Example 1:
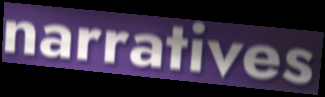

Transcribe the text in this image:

narratives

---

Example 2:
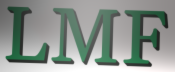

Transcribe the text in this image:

LMF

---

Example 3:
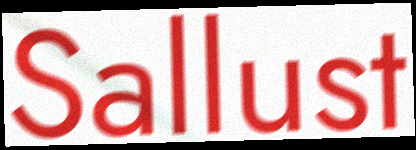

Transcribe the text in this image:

Sallust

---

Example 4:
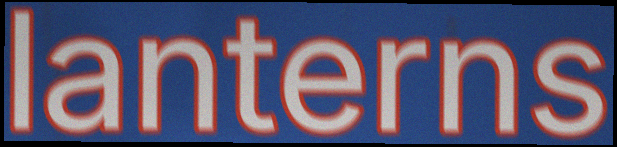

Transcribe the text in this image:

lanterns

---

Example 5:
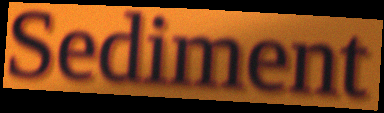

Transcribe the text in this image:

Sediment